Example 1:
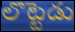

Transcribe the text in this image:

లొట్టెడు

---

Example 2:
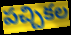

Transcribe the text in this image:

పచ్చికల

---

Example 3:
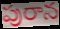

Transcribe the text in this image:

పురాన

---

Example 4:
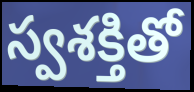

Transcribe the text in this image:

స్వశక్తితో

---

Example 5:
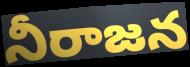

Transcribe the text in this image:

నీరాజన